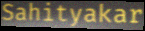
Sahityakar